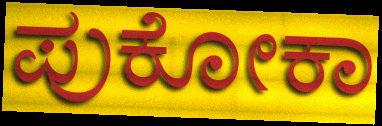
ಪುಕೋಕಾ